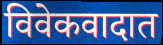
विवेकवादात